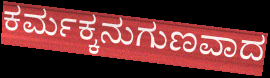
ಕರ್ಮಕ್ಕನುಗುಣವಾದ